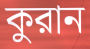
কুরান